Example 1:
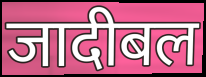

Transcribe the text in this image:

जादीबल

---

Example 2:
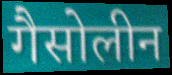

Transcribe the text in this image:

गैसोलीन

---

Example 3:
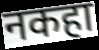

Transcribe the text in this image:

नकहा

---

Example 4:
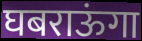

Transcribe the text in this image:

घबराऊंगा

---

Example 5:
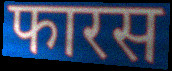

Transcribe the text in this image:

फारस